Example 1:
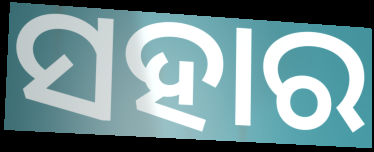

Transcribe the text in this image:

ସହାର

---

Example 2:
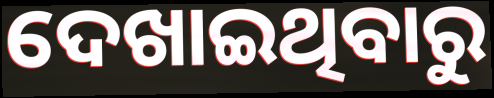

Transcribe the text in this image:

ଦେଖାଇଥିବାରୁ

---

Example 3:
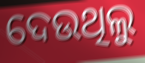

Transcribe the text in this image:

ଦେଉଥିଲୁ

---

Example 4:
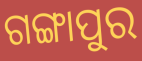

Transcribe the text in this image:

ଗଙ୍ଗାପୁର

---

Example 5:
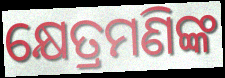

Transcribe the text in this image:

କ୍ଷେତ୍ରମଣିଙ୍କ